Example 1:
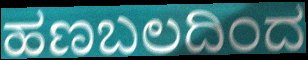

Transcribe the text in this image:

ಹಣಬಲದಿಂದ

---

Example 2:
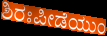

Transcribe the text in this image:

ಶಿರಃಪೀಡೆಯುಂ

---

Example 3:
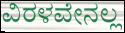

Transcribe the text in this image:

ವಿರಳವೇನಲ್ಲ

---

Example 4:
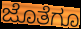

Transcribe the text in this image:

ಜೊತೆಗೂ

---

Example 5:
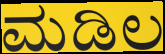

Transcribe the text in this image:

ಮಡಿಲ